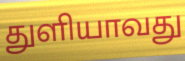
துளியாவது